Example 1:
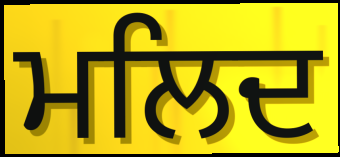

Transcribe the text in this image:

ਮਲਿਦ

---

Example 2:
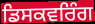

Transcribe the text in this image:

ਡਿਸਕਵਰਿੰਗ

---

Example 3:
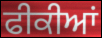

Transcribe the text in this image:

ਫੀਕੀਆਂ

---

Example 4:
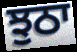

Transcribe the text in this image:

ਝੁਠਾ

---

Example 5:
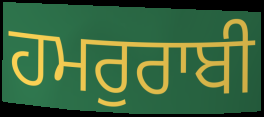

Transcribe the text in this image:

ਹਮਰੁਰਾਬੀ